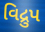
વિદ્રુપ